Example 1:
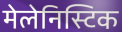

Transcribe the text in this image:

मेलेनिस्टिक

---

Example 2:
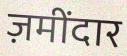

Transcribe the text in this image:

ज़मींदार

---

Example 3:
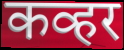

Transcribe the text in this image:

कव्हर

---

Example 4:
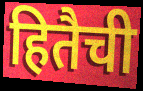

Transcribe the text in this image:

हितैची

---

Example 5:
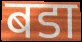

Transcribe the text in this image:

बडा